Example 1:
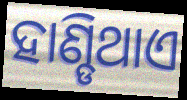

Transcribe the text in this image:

ହାଣ୍ଡିଥାଏ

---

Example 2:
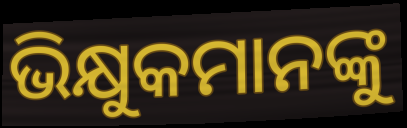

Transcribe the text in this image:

ଭିକ୍ଷୁକମାନଙ୍କୁ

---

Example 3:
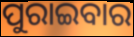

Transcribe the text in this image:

ପୁରାଇବାର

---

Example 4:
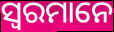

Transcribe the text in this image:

ସ୍ୱରମାନେ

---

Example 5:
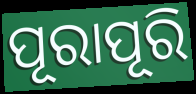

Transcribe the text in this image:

ପୂରାପୂରି